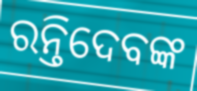
ରନ୍ତିଦେବଙ୍କ